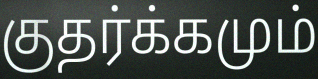
குதர்க்கமும்